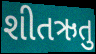
શીતઋતુ